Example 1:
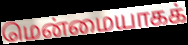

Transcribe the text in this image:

மென்மையாகக்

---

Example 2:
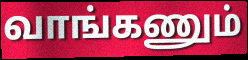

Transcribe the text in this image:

வாங்கணும்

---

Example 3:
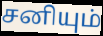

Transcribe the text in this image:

சனியும்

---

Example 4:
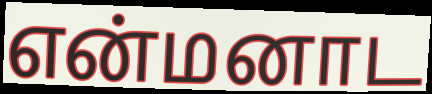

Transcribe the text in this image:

என்மனாட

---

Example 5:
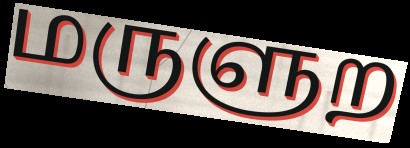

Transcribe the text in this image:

மருளுற